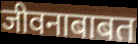
जीवनाबाबत